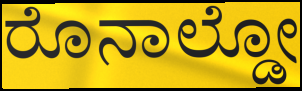
ರೊನಾಲ್ಡೋ